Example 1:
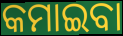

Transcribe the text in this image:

କମାଇବା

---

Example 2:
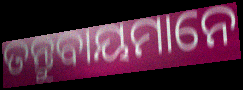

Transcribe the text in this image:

ତନ୍ତୁବାୟମାନେ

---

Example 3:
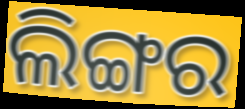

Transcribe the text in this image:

ଲିଙ୍ଗର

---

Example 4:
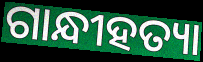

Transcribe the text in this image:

ଗାନ୍ଧୀହତ୍ୟା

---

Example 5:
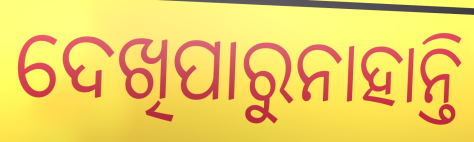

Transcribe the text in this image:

ଦେଖିପାରୁନାହାନ୍ତି